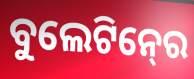
ବୁଲେଟିନ୍‍ରେ